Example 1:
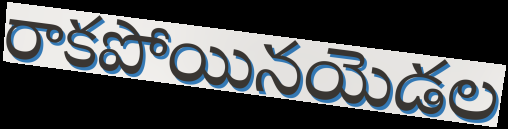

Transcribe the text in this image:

రాకపోయినయెడల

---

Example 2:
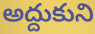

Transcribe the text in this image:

అద్దుకుని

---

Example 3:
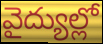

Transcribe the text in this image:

వైద్యుల్లో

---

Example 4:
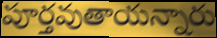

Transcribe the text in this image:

పూర్తవుతాయన్నారు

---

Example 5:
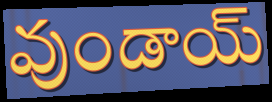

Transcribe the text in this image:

వుండాయ్